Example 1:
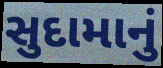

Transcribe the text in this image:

સુદામાનું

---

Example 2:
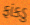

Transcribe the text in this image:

ફાંકડુ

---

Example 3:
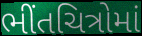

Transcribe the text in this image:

ભીંતચિત્રોમાં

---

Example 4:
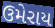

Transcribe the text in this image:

ઉમેરાય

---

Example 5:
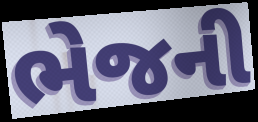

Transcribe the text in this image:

ભેજની